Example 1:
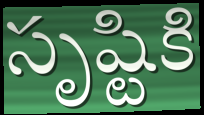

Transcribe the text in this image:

సృష్టికి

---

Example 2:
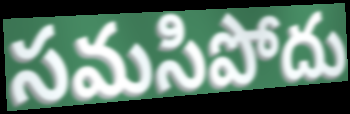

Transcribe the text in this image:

సమసిపోదు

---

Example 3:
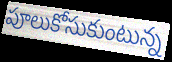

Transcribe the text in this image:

పూలుకోసుకుంటున్న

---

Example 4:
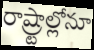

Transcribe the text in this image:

రాష్ర్టాల్లోనూ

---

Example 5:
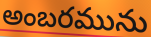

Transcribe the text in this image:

అంబరమును